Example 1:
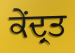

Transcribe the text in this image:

ਕੇਂਦ੍ਰਤ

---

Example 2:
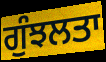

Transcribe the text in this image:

ਗੁੰਝਲਤਾ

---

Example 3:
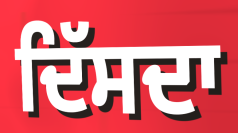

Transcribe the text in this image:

ਦਿੱਸਦਾ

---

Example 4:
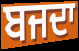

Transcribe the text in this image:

ਬਜਦਾ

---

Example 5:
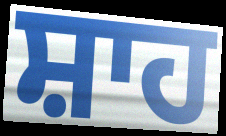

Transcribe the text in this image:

ਸ਼ਾਹ